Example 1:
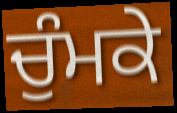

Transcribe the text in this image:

ਚੁੰਮਕੇ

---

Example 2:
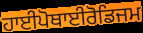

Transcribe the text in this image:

ਹਾਈਪੋਥਾਈਰੋਡਿਜਮ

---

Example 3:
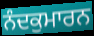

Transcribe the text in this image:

ਨੰਦਕੁਮਾਰਨ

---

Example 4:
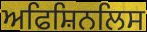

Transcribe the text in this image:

ਅਫਿਸ਼ਿਨਲਿਸ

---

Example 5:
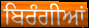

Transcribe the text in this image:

ਬਿਰੰਗੀਆਂ